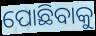
ପୋଛିବାକୁ